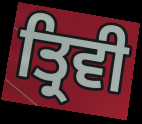
ਤ੍ਰਿਵੀ